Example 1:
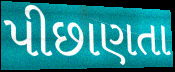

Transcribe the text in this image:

પીછાણતા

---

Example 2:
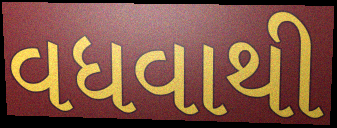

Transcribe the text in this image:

વધવાથી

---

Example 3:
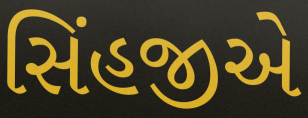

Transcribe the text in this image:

સિંહજીએ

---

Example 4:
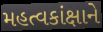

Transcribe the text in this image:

મહત્વકાંક્ષાને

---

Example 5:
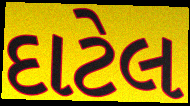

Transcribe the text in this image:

દાટેલ